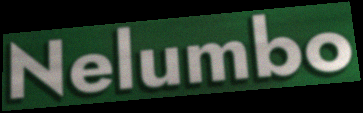
Nelumbo